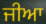
ਜੀਆ